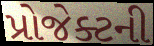
પ્રોજેક્ટની